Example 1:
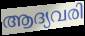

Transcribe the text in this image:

ആദ്യവരി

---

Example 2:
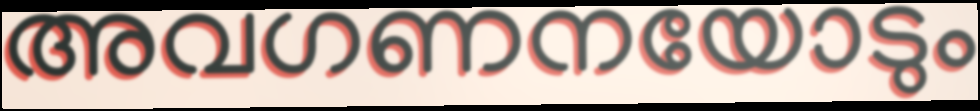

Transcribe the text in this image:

അവഗണനയോടും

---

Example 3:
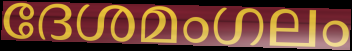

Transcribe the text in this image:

ദേശമംഗലം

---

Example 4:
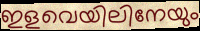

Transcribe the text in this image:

ഇളവെയിലിനേയും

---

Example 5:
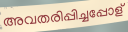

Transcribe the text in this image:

അവതരിപ്പിച്ചപ്പോള്